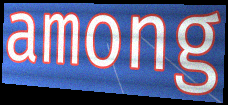
among